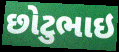
છોટુભાઇ